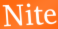
Nite